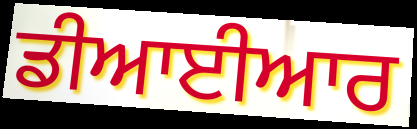
ਡੀਆਈਆਰ